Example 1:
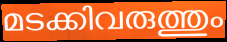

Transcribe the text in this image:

മടക്കിവരുത്തും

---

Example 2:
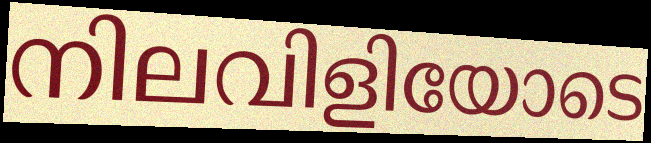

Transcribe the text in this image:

നിലവിളിയോടെ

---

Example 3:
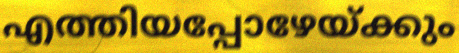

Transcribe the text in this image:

എത്തിയപ്പോഴേയ്ക്കും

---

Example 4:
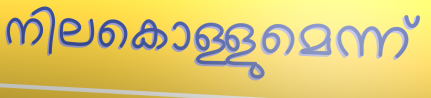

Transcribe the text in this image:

നിലകൊള്ളുമെന്ന്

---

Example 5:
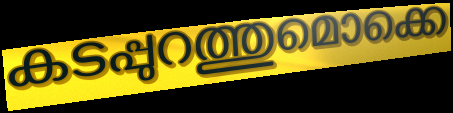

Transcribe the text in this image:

കടപ്പുറത്തുമൊക്കെ